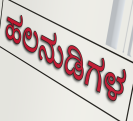
ಹಲನುಡಿಗಳ